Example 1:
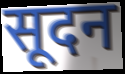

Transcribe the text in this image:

सूदन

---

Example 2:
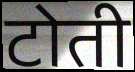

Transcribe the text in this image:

टोती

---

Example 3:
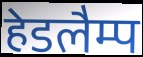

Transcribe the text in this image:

हेडलैम्प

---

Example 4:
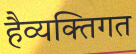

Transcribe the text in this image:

हैव्यक्तिगत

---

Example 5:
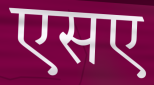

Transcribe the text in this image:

एसए